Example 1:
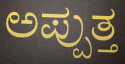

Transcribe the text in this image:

ಅಪ್ಪುತ್ತ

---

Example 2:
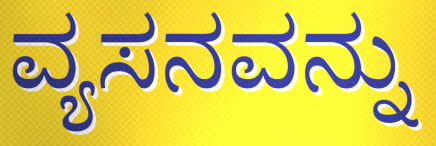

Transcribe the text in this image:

ವ್ಯಸನವನ್ನು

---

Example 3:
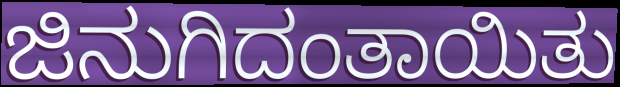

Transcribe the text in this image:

ಜಿನುಗಿದಂತಾಯಿತು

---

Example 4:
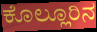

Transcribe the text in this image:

ಕೊಲ್ಲೂರಿನ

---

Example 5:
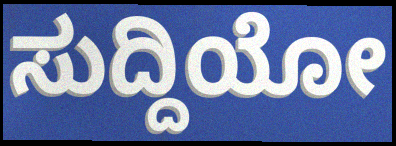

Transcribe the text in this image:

ಸುದ್ದಿಯೋ